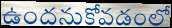
ఉందనుకోవడంలో